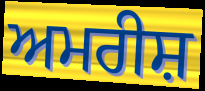
ਅਮਰੀਸ਼